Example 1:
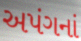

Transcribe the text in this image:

અપંગનાં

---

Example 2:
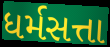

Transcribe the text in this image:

ધર્મસત્તા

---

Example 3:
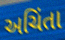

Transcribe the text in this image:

અચિંતા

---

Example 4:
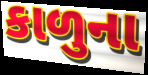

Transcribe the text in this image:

કાળુના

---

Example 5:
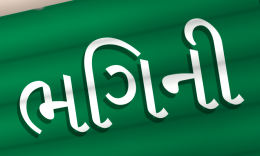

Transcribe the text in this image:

ભગિની